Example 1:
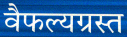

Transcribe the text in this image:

वैफल्यग्रस्त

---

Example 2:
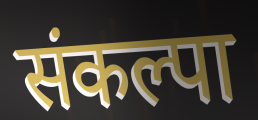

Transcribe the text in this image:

संकल्पा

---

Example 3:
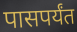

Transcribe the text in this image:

पासपर्यंत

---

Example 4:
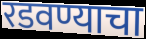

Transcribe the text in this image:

रडवण्याचा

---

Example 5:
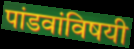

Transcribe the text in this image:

पांडवांविषयी